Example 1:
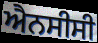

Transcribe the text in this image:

ਐਨਸੀਸੀ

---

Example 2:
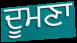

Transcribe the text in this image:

ਦੂਮਣਾ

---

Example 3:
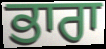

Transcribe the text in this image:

ਭਾਰਾ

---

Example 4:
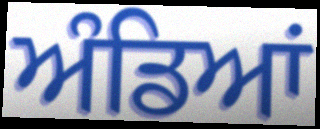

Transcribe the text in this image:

ਅੰਡਿਆਂ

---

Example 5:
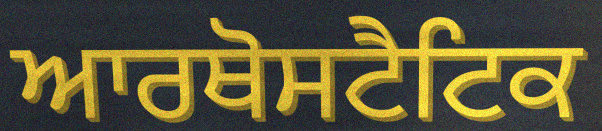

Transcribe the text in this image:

ਆਰਥੋਸਟੈਟਿਕ